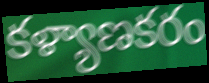
కళ్యాణకరం